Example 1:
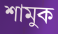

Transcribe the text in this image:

শামুক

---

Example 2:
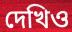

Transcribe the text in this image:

দেখিও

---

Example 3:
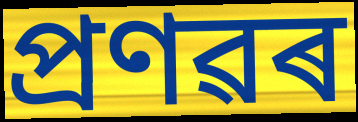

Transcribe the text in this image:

প্ৰণৱৰ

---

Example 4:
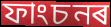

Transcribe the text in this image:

ফাংচনৰ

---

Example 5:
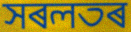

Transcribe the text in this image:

সৰলতৰ